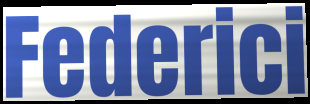
Federici